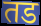
तड